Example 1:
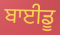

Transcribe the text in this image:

ਬਾਈਡੂ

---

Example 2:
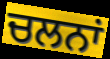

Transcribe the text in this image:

ਚਲਨਾਂ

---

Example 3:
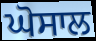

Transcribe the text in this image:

ਘੋਸਾਲ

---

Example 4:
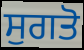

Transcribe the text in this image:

ਸੁਗਤੋ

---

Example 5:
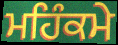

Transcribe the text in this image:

ਮਹਿੰਕਮੇ